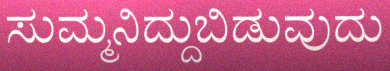
ಸುಮ್ಮನಿದ್ದುಬಿಡುವುದು